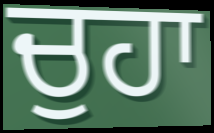
ਚੁਹਾ